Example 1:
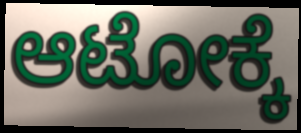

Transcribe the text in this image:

ಆಟೋಕ್ಕೆ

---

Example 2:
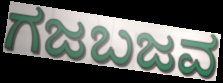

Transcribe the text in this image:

ಗಜಬಜವ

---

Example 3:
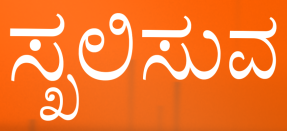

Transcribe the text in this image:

ಸ್ಖಲಿಸುವ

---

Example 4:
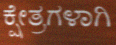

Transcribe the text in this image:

ಕ್ಷೇತ್ರಗಳಾಗಿ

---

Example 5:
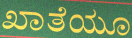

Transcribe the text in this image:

ಖಾತೆಯೂ